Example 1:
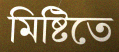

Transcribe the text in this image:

মিষ্টিতে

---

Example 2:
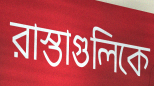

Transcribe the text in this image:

রাস্তাগুলিকে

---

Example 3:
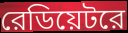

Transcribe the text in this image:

রেডিয়েটরে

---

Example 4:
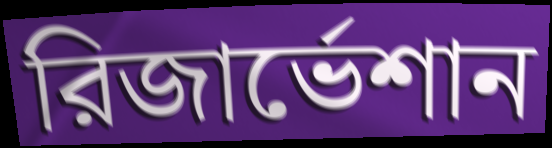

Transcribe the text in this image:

রিজার্ভেশান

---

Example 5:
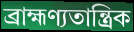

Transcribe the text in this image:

ব্রাহ্মণ্যতান্ত্রিক